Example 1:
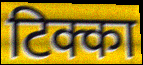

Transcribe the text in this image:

टिक्का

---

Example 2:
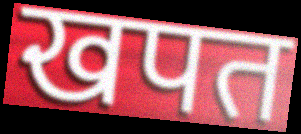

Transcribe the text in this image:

खपत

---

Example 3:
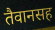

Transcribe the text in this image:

तैवानसह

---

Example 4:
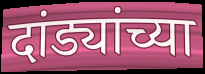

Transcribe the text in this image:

दांड्यांच्या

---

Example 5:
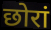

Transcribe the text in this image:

छोरां